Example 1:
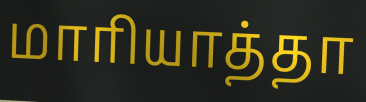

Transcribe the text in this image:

மாரியாத்தா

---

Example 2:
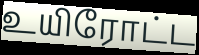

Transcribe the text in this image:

உயிரோட்ட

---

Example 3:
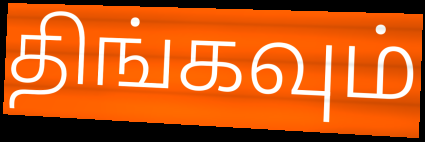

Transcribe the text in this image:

திங்கவும்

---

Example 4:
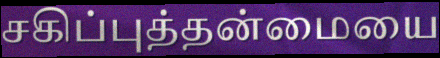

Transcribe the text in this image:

சகிப்புத்தன்மையை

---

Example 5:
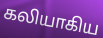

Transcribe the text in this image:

கலியாகிய